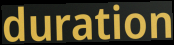
duration